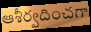
ఆశీర్వదించగా